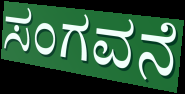
ಸಂಗವನೆ